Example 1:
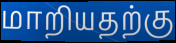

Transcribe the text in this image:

மாறியதற்கு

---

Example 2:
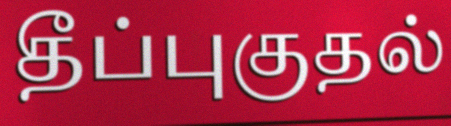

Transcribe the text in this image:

தீப்புகுதல்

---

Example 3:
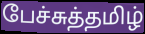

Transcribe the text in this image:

பேச்சுத்தமிழ்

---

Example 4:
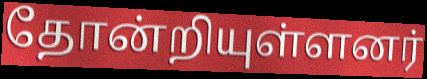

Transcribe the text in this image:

தோன்றியுள்ளனர்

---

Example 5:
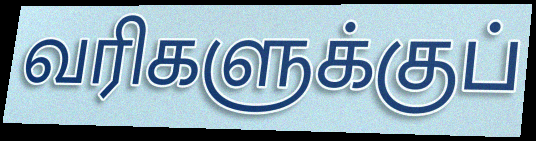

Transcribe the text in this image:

வரிகளுக்குப்